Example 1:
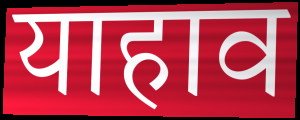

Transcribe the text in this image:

याहाव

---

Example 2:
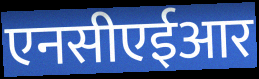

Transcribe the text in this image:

एनसीएईआर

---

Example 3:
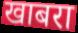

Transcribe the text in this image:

खाबरा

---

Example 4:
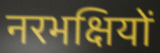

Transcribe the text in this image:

नरभक्षियों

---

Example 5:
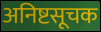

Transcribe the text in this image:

अनिष्टसूचक